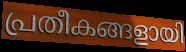
പ്രതീകങ്ങളായി